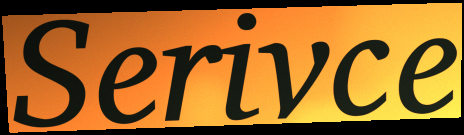
Serivce